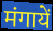
मंगायें